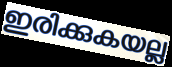
ഇരിക്കുകയല്ല